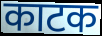
काटक